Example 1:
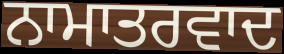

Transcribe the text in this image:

ਨਾਮਾਤਰਵਾਦ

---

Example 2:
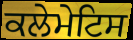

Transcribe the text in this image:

ਕਲੇਮੇਟਿਸ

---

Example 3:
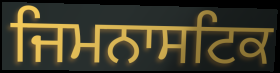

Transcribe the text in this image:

ਜਿਮਨਾਸਟਿਕ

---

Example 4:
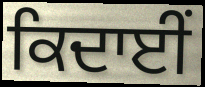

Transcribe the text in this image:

ਕਿਦਾਈਂ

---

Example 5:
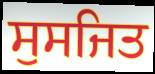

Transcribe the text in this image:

ਸੁਸਜਿਤ